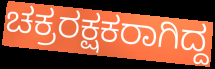
ಚಕ್ರರಕ್ಷಕರಾಗಿದ್ದ